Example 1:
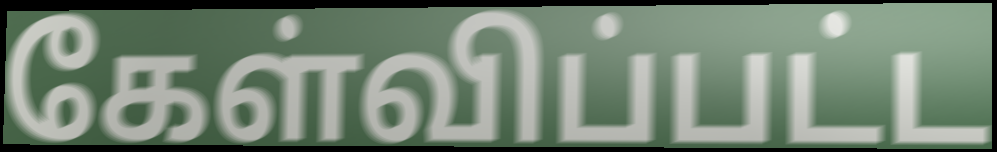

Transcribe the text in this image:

கேள்விப்பட்ட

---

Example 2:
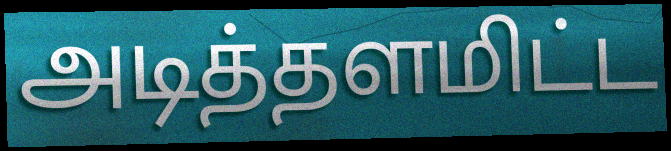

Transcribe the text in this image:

அடித்தளமிட்ட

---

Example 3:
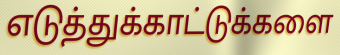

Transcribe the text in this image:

எடுத்துக்காட்டுக்களை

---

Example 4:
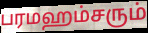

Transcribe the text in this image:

பரமஹம்சரும்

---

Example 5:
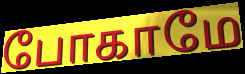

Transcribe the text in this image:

போகாமே